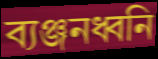
ব্যঞ্জনধ্বনি